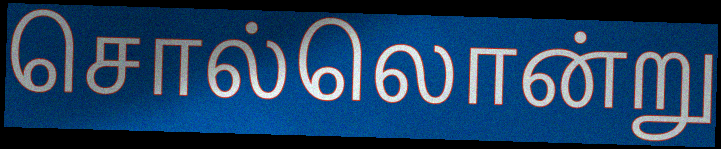
சொல்லொன்று